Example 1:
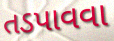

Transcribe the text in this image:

તડપાવવા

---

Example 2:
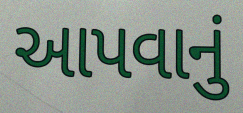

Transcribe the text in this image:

આપવાનું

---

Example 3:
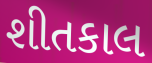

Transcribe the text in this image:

શીતકાલ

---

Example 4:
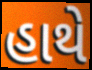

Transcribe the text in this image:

હાથે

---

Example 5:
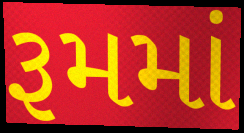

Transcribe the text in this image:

રૂમમાં